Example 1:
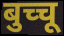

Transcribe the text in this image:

बुच्चू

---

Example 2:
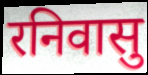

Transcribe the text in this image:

रनिवासु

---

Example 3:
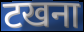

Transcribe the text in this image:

टखना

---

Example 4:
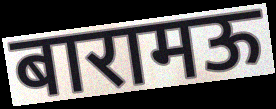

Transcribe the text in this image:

बारामऊ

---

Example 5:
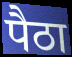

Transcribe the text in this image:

पैठा